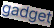
gadget